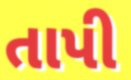
તાપી